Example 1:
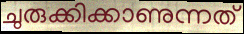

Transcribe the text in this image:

ചുരുക്കിക്കാണുന്നത്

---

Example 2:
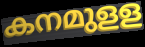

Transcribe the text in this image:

കനമുളള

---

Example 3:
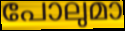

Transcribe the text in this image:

പോലുമാ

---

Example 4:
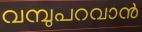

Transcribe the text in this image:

വമ്പുപറവാൻ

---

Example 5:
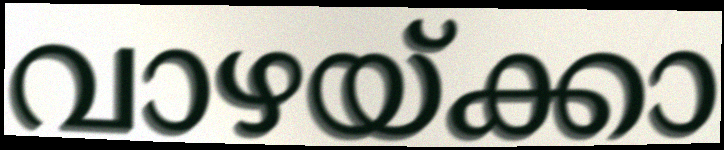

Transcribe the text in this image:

വാഴയ്ക്കാ